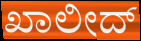
ಖಾಲೀದ್